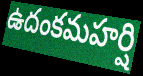
ఉదంకమహర్షి